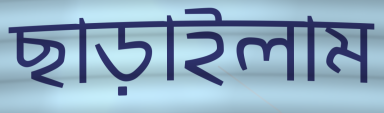
ছাড়াইলাম